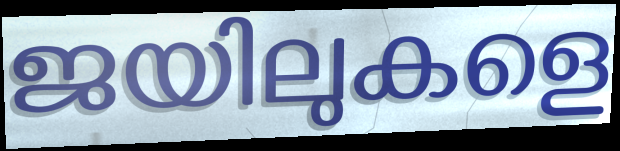
ജയിലുകളെ